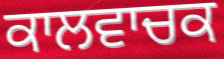
ਕਾਲਵਾਚਕ